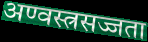
अण्वस्त्रसज्जता